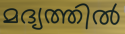
മദ്യത്തിൽ